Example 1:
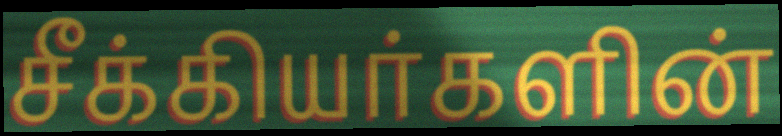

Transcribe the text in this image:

சீக்கியர்களின்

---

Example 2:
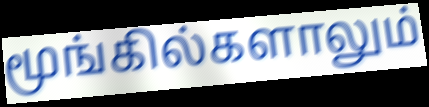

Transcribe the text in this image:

மூங்கில்களாலும்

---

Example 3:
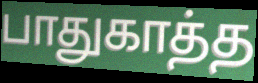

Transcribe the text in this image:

பாதுகாத்த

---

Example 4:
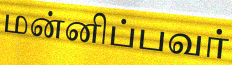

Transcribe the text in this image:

மன்னிப்பவர்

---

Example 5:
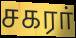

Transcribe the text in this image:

சகரர்